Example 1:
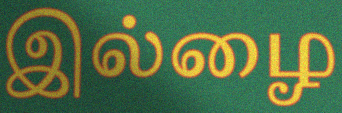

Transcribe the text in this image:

இல்ழை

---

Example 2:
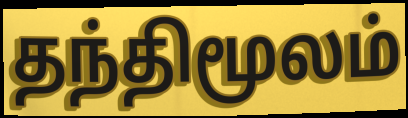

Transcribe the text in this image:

தந்திமூலம்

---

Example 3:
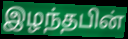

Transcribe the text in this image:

இழந்தபின்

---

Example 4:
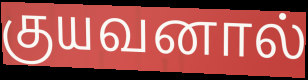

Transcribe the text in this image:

குயவனால்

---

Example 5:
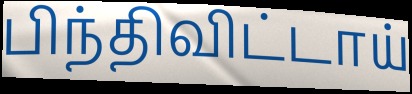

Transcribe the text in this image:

பிந்திவிட்டாய்